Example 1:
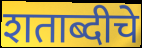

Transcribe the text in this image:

शताब्दीचे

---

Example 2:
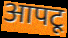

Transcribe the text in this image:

आपटू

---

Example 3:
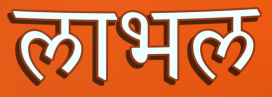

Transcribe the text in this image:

लाभल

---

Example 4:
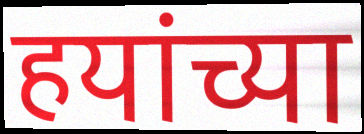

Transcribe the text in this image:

हयांच्या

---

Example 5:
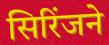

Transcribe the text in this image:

सिरिंजने